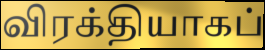
விரக்தியாகப்